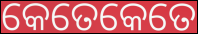
କେତେକେତେ